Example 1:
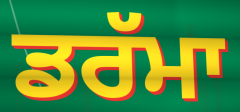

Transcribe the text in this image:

ਡਰੱਮਾ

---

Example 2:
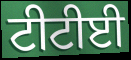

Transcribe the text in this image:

ਟੀਟੀਈ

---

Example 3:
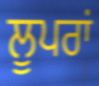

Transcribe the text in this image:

ਲੂਪਰਾਂ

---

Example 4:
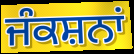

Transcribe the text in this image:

ਜੰਕਸ਼ਨਾਂ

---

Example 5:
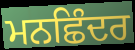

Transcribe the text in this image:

ਮਨਛਿੰਦਰ